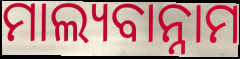
ମାଲ୍ୟବାନ୍ନାମ